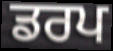
ਡਰਪ